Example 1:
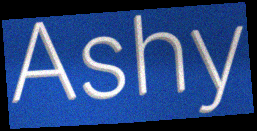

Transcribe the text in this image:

Ashy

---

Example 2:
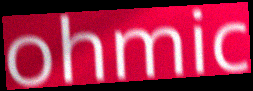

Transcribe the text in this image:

ohmic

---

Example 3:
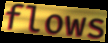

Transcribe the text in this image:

flows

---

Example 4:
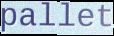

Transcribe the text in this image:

pallet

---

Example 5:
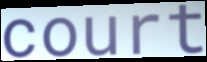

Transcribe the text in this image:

court